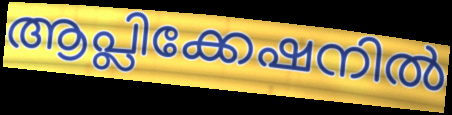
ആപ്ലിക്കേഷനിൽ